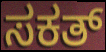
ಸಕತ್